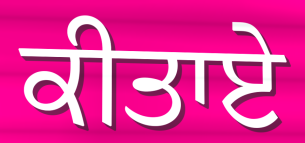
ਕੀਤਾਏ